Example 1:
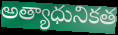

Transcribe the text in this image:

అత్యాధునికత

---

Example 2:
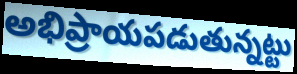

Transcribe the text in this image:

అభిప్రాయపడుతున్నట్టు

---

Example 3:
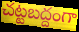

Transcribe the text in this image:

చట్టబద్దంగా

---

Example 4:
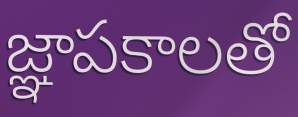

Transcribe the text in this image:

జ్ఞాపకాలతో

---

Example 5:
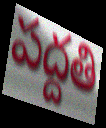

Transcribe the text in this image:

పద్దతి